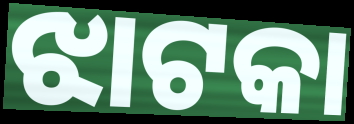
ଝାଟକା